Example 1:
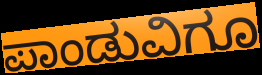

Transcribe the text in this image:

ಪಾಂಡುವಿಗೂ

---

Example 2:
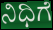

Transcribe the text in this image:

ನಿಧಿಗೆ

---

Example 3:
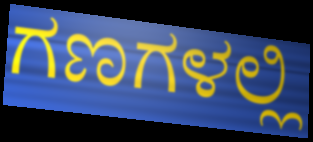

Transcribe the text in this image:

ಗಣಗಳಲ್ಲಿ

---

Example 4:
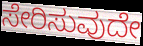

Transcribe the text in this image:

ಸೇರಿಸುವುದೇ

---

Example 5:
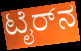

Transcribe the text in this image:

ಟೈರ್‌ನ